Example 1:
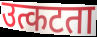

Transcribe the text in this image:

उत्कटता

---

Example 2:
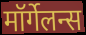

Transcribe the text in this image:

मॉर्गेलन्स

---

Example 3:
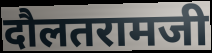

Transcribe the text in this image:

दौलतरामजी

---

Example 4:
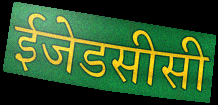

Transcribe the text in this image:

ईजेडसीसी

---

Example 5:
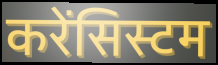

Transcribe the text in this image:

करेंसिस्टम